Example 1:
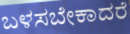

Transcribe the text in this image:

ಬಳಸಬೇಕಾದರೆ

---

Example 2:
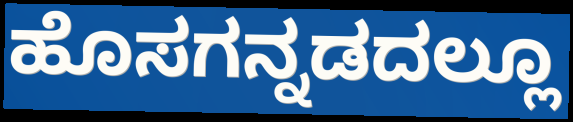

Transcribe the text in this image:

ಹೊಸಗನ್ನಡದಲ್ಲೂ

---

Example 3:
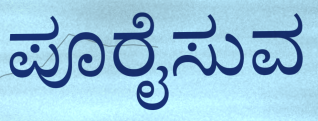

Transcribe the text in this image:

ಪೂರೈಸುವ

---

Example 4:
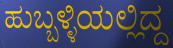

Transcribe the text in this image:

ಹುಬ್ಬಳ್ಳಿಯಲ್ಲಿದ್ದ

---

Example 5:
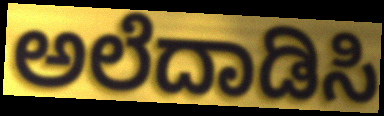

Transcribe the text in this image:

ಅಲೆದಾಡಿಸಿ